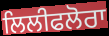
ਲਿਲੀਫਲੋਰਾ